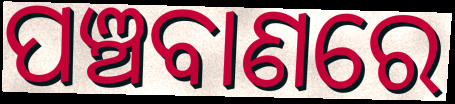
ପଞ୍ଚବାଣରେ